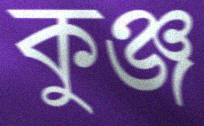
কুঞ্জ